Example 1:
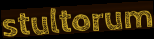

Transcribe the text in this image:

stultorum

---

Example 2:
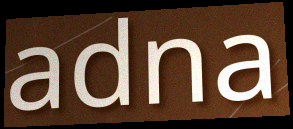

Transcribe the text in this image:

adna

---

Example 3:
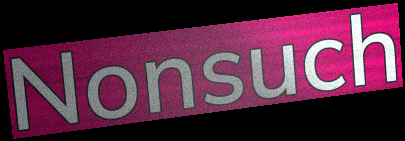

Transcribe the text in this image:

Nonsuch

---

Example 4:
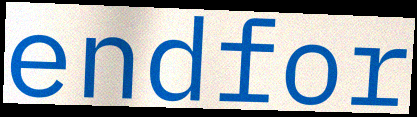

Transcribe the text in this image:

endfor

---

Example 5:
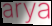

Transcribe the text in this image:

arya